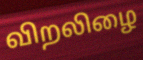
விறலிழை